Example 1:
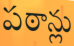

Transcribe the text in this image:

పఠాన్లు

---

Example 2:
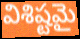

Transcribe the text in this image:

విశిష్టమై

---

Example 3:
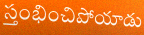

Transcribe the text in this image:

స్తంభించిపోయాడు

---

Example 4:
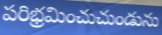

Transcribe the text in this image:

పరిభ్రమించుచుండును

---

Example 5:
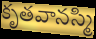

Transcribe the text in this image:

కృతవానస్మి